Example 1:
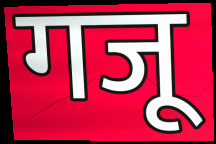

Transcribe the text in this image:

गजू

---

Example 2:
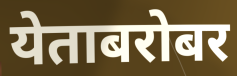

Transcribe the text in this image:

येताबरोबर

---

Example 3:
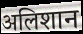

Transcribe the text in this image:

अलिशान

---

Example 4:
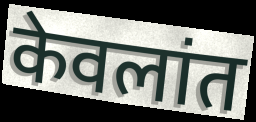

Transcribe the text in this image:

केवलांत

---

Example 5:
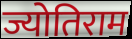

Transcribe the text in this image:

ज्योतिराम